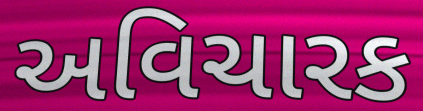
અવિચારક